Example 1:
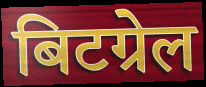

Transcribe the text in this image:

बिटग्रेल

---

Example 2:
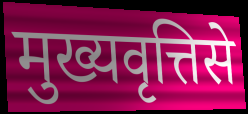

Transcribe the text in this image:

मुख्यवृत्तिसे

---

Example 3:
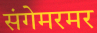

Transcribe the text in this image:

संगेमरमर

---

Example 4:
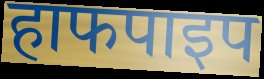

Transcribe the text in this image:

हाफपाइप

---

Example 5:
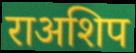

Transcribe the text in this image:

राअशिप